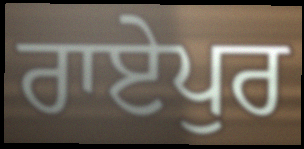
ਰਾਏਪੁਰ